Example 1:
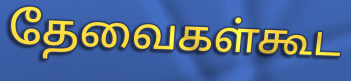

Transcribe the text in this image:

தேவைகள்கூட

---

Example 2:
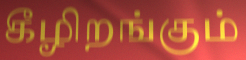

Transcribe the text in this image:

கீழிறங்கும்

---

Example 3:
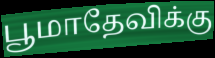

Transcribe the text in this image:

பூமாதேவிக்கு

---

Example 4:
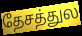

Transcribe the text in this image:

தேசத்துல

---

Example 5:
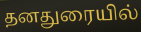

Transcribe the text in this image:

தனதுரையில்